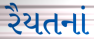
રૈયતનાં